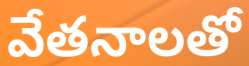
వేతనాలతో